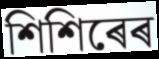
শিশিৰেৰ